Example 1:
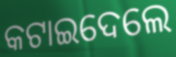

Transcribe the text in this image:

କଟାଇଦେଲେ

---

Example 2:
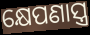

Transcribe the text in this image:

କ୍ଷେପଣାସ୍ତ୍ର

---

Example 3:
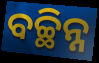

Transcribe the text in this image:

ବଚ୍ଛିନ୍ନ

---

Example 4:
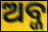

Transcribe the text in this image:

ଅବ୍ଜ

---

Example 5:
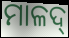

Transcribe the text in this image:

ମାଳଦ୍